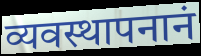
व्यवस्थापनानं